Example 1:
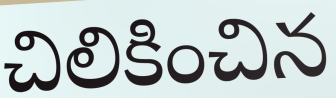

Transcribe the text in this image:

చిలికించిన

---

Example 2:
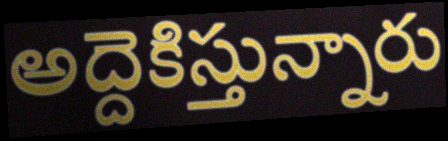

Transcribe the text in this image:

అద్దెకిస్తున్నారు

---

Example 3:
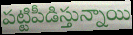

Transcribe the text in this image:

పట్టిపీడిస్తున్నాయి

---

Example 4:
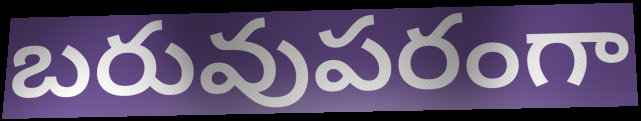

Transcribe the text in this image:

బరువుపరంగా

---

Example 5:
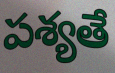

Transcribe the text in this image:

పశ్యతే